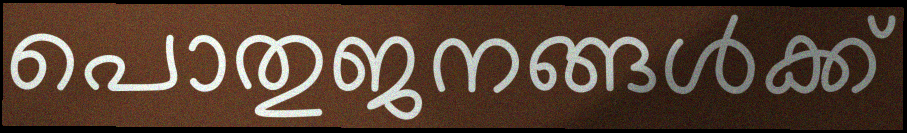
പൊതുജനങ്ങൾക്ക്